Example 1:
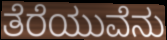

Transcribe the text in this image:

ತೆರೆಯುವೆನು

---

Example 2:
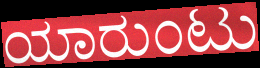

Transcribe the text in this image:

ಯಾರುಂಟು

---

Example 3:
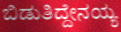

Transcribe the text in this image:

ಬಿಡುತಿದ್ದೇನಯ್ಯ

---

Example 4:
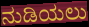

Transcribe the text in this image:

ನುಡಿಯಲು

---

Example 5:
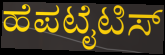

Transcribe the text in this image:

ಹೆಪಟೈಟಿಸ್